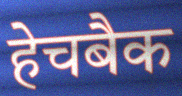
हेचबैक